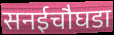
सनईचौघडा